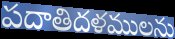
పదాతిదళములను